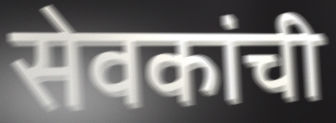
सेवकांची